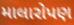
માલારોપણ